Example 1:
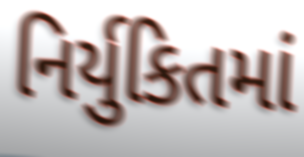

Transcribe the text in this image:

નિર્યુકિતમાં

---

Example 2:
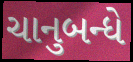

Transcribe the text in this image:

ચાનુબન્ધે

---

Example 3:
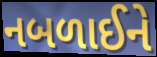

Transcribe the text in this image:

નબળાઈને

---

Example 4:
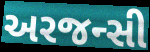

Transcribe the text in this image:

અરજન્સી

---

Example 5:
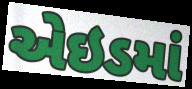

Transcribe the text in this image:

એઇડમાં